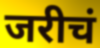
जरीचं